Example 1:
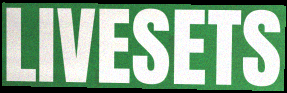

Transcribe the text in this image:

LIVESETS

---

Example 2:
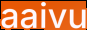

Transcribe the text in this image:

aaivu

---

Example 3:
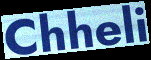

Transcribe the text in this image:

Chheli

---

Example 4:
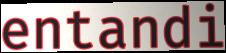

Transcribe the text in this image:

entandi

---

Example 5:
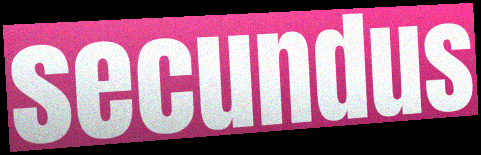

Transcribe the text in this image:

secundus